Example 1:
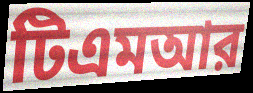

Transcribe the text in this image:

টিএমআর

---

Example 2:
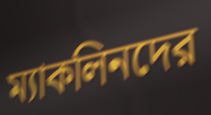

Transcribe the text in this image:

ম্যাকলিনদের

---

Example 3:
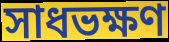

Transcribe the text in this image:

সাধভক্ষণ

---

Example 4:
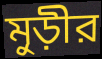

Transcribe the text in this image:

মুড়ীর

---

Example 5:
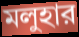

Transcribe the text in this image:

মলুহার